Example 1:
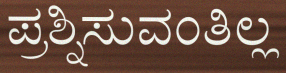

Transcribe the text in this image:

ಪ್ರಶ್ನಿಸುವಂತಿಲ್ಲ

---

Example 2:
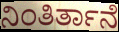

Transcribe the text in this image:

ನಿಂತಿರ್ತಾನೆ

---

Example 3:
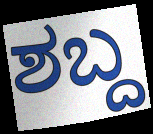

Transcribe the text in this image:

ಶಬ್ದ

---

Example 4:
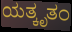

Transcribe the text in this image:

ಯತ್ಕೃತಂ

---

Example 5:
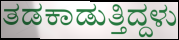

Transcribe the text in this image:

ತಡಕಾಡುತ್ತಿದ್ದಳು